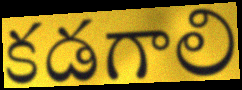
కడగాలి